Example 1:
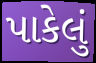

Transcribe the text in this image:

પાકેલું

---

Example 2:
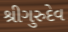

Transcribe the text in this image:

શ્રીગુરુદેવ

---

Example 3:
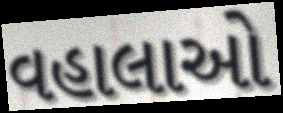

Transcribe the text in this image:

વહાલાઓ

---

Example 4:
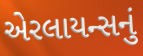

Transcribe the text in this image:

એરલાયન્સનું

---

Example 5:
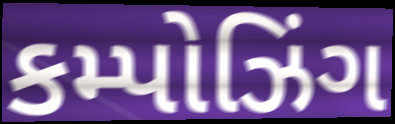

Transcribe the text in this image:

કમ્પોઝિંગ